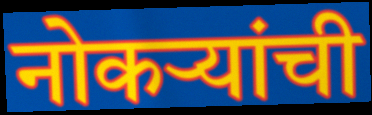
नोकऱ्यांची